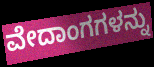
ವೇದಾಂಗಗಳನ್ನು